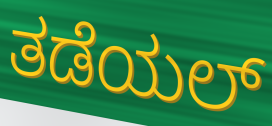
ತಡೆಯಲ್